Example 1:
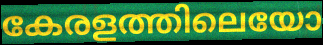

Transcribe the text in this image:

കേരളത്തിലെയോ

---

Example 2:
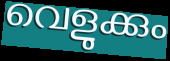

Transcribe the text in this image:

വെളുക്കും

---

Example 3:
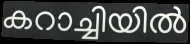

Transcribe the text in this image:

കറാച്ചിയിൽ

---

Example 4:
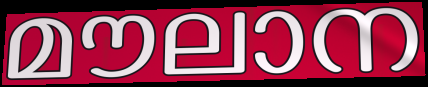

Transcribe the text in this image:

മൗലാന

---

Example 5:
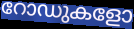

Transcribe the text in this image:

റോഡുകളോ